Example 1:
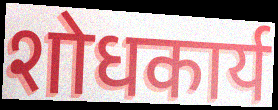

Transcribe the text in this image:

शोधकार्य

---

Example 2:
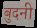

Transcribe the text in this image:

बुदनी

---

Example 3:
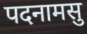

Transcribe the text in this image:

पदनामसु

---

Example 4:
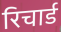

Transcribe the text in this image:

रिचार्ड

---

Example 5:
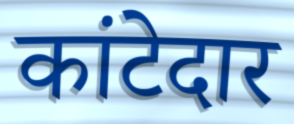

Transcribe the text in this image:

कांटेदार